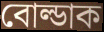
বোল্ডাক